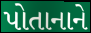
પોતાનાને